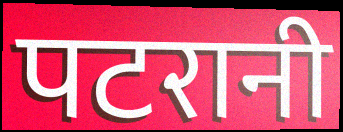
पटरानी